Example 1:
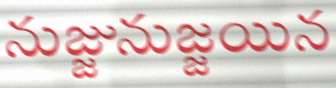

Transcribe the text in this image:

నుజ్జునుజ్జయిన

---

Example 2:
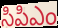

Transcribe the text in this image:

సిపిఎం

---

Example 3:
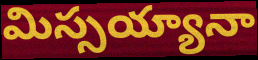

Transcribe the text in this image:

మిస్సయ్యానా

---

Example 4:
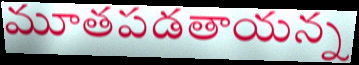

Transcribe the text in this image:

మూతపడతాయన్న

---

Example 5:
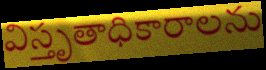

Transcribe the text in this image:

విస్తృతాధికారాలను